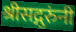
श्रीसद्गुरुंनी